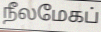
நீலமேகப்